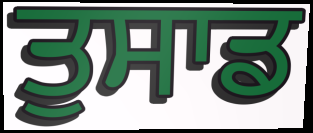
ਤੁਸਾਡ